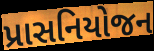
પ્રાસનિયોજન